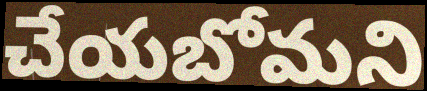
చేయబోమని